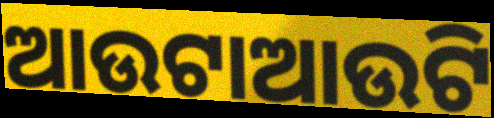
ଆଉଟାଆଉଟି